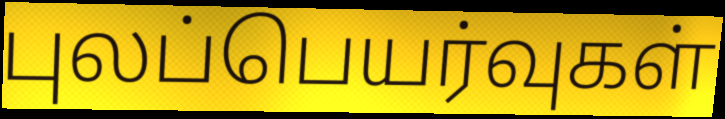
புலப்பெயர்வுகள்